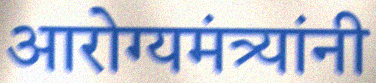
आरोग्यमंत्र्यांनी